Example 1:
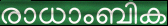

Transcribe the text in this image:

രാധാംബിക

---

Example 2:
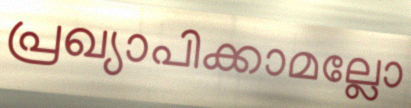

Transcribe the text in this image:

പ്രഖ്യാപിക്കാമല്ലോ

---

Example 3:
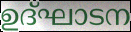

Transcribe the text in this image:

ഉദ്ഘാടന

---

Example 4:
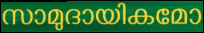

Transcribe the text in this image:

സാമുദായികമോ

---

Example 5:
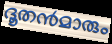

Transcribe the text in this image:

ദൂതൻമാരും